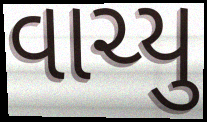
વાચ્યુ